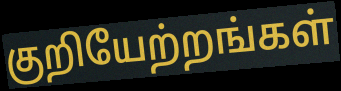
குறியேற்றங்கள்